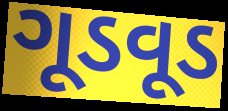
ગૂડવૂડ